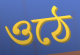
ওঠে